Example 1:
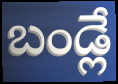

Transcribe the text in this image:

బండ్లే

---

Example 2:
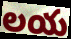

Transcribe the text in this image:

లయ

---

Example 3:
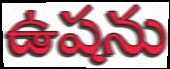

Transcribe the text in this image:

ఉషను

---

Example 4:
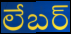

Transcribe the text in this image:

లేబర్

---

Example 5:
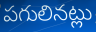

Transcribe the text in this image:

పగులినట్లు